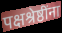
पक्षश्रेष्ठींना